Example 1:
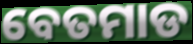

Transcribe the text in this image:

ବେତମାଡ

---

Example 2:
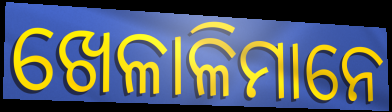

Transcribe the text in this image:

ଖେଳାଳିମାନେ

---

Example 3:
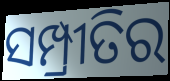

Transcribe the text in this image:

ସମ୍ପ୍ରୀତିର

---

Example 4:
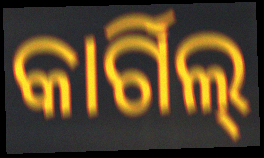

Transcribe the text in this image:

କାର୍ଗିଲ୍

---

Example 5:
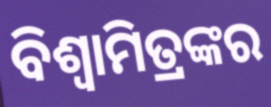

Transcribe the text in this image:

ବିଶ୍ୱାମିତ୍ରଙ୍କର